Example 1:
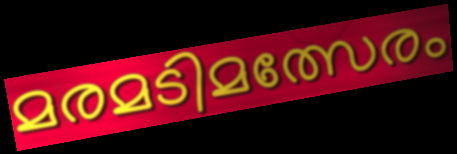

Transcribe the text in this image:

മരമടിമത്സേരം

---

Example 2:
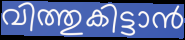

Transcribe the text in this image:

വിത്തുകിട്ടാൻ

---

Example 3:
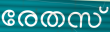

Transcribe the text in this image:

രേതസ്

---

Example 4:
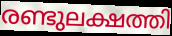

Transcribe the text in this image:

രണ്ടുലക്ഷത്തി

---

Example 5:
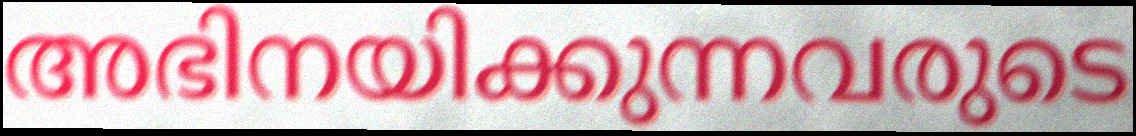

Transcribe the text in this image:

അഭിനയിക്കുന്നവരുടെ